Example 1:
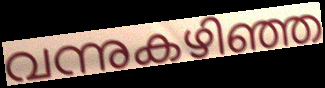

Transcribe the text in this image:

വന്നുകഴിഞ്ഞ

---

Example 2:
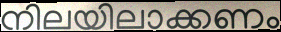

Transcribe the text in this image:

നിലയിലാക്കണം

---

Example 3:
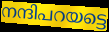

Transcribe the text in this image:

നന്ദിപറയട്ടെ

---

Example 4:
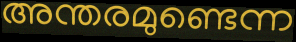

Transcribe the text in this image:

അന്തരമുണ്ടെന്ന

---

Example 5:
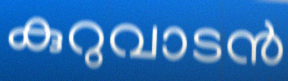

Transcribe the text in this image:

കുറുവാടൻ